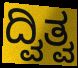
ದ್ವಿತ್ವ